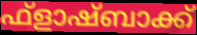
ഫ്ളാഷ്ബാക്ക്